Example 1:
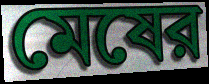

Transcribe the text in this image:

মেষের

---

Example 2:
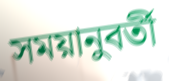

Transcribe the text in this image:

সময়ানুবর্তী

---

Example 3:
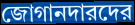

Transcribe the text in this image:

জোগানদারদের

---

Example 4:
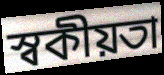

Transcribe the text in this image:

স্বকীয়তা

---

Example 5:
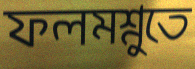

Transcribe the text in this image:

ফলমশ্নুতে